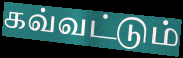
கவ்வட்டும்